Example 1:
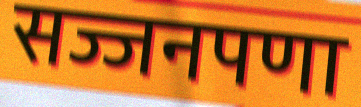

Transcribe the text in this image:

सज्जनपणा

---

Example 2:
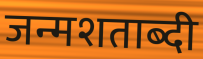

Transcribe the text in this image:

जन्मशताब्दी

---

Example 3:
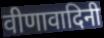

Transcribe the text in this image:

वीणावादिनी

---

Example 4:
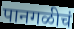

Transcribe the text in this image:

पानगळीचं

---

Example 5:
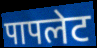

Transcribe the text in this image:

पापलेट